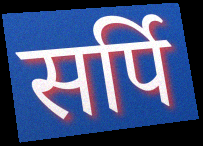
सर्पि